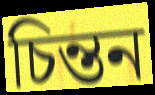
চিন্তন